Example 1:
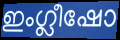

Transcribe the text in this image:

ഇംഗ്ലീഷോ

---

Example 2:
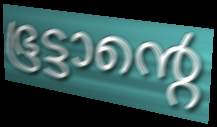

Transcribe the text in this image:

ഭൂട്ടാന്റെ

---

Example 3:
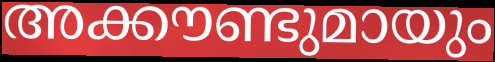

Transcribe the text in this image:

അക്കൗണ്ടുമായും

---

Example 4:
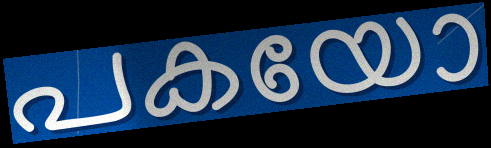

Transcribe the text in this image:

പകയോ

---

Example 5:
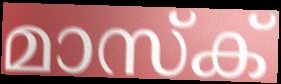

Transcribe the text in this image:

മാസ്ക്